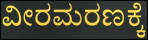
ವೀರಮರಣಕ್ಕೆ